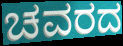
ಚವರದ